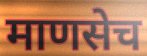
माणसेच